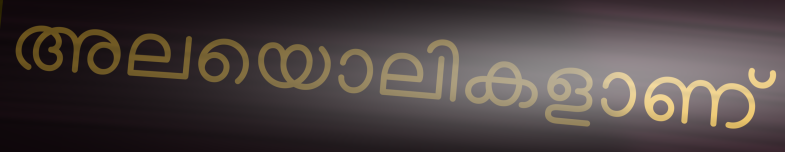
അലയൊലികളാണ്